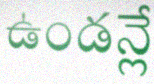
ఉండన్లే